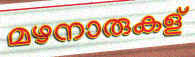
മഴനാരുകള്